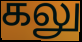
கலு